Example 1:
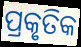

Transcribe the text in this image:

ପ୍ରକୃତିକ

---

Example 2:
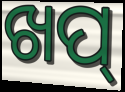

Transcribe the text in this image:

ଖପ୍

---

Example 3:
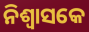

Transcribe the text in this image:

ନିଶ୍ଵାସକେ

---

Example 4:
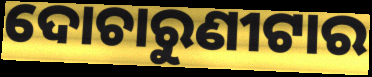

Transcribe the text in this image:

ଦୋଚାରୁଣୀଟାର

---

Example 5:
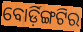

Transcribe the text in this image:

ବୋର୍ଡ଼ିଙ୍ଗଟିର